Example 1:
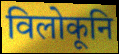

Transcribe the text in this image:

विलोकूनि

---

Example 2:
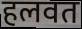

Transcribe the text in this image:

हलवत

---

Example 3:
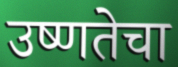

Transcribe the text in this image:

उष्णतेचा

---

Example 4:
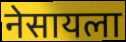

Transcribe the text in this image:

नेसायला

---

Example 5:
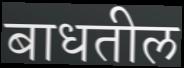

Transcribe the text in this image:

बाधतील